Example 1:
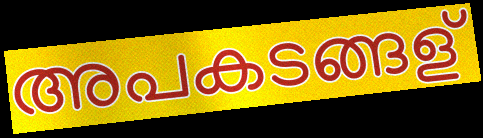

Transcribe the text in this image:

അപകടങ്ങള്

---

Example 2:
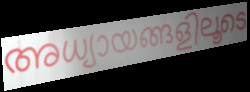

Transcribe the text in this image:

അധ്യായങ്ങളിലൂടെ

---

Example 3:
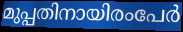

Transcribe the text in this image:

മുപ്പതിനായിരംപേർ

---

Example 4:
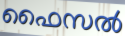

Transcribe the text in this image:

ഫൈസൽ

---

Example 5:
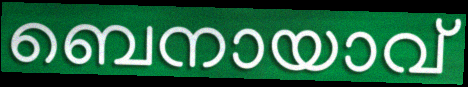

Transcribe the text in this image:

ബെനായാവ്